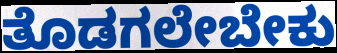
ತೊಡಗಲೇಬೇಕು